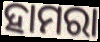
ହାମରା